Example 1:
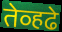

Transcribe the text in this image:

तेव्हढे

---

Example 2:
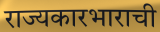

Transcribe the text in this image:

राज्यकारभाराची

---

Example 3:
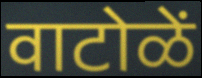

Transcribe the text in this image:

वाटोळें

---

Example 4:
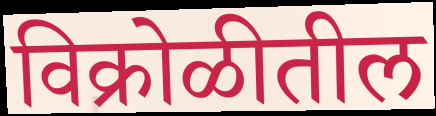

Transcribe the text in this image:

विक्रोळीतील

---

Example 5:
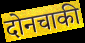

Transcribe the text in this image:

दोनचाकी